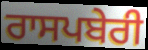
ਰਾਸਪਬੇਰੀ